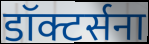
डॉक्टर्सना